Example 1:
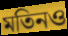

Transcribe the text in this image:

মতিনও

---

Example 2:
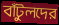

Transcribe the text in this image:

বাঁটুলদের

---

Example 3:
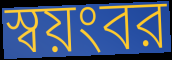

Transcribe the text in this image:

স্বয়ংবর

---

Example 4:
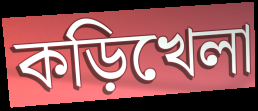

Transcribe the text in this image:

কড়িখেলা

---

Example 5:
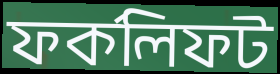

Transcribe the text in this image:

ফর্কলিফট